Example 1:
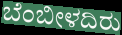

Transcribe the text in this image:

ಬೆಂಬೀಳದಿರು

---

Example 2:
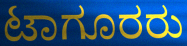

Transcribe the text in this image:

ಟಾಗೂರರು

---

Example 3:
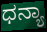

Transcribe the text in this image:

ಧನ್ಯಾ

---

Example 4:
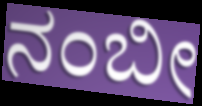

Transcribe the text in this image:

ನಂಬೀ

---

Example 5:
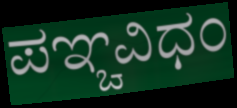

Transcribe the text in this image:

ಪಞ್ಚವಿಧಂ